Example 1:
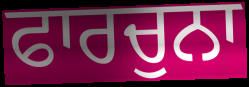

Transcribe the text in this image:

ਫਾਰਚੁਨਾ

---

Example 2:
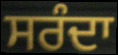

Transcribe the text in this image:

ਸਰੰਦਾ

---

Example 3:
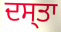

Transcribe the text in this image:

ਦਸ੍ਤਾ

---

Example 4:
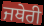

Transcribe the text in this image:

ਜਥੇਰੀ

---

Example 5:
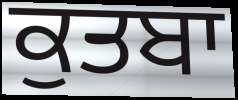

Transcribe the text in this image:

ਕੁਤਬਾ